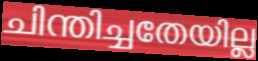
ചിന്തിച്ചതേയില്ല